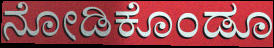
ನೋಡಿಕೊಂಡೂ